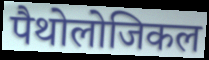
पैथोलोजिकल